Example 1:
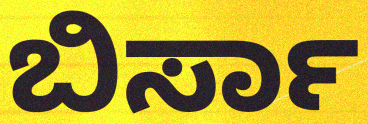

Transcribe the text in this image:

ಬಿರ್ಸಾ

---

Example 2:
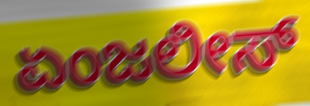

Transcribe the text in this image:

ಏಂಜಲೀಸ್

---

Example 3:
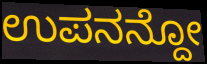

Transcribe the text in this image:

ಉಪನನ್ದೋ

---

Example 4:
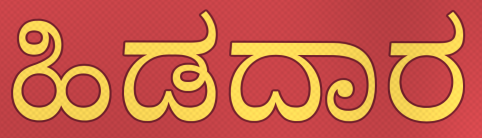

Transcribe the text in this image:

ಹಿಡದಾರ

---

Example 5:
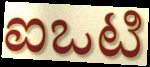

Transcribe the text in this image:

ಐಒಟಿ